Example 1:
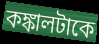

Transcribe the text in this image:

কঙ্কালটাকে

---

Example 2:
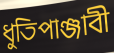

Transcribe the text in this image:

ধুতিপাঞ্জাবী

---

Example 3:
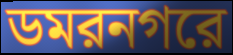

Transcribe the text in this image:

ডমরনগরে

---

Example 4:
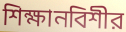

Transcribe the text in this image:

শিক্ষানবিশীর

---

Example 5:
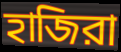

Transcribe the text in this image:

হাজিরা